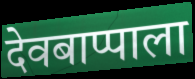
देवबाप्पाला